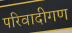
परिवादीगण